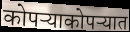
कोपऱ्याकोपऱ्यात